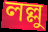
লল্লু